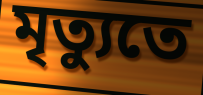
মৃত্যুতে